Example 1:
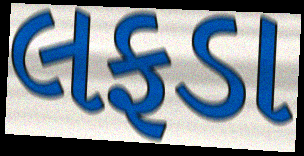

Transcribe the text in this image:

લફડા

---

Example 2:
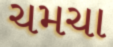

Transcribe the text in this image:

ચમચા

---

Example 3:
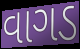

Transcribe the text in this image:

વાગડ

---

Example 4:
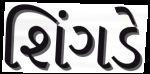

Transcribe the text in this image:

શિંગડે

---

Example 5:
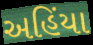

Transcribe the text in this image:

અહિંયા